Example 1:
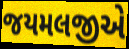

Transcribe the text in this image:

જયમલજીએ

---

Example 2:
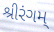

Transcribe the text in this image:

શ્રીરંગમ્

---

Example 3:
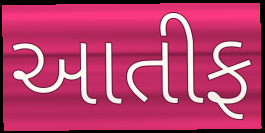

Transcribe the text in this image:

આતીફ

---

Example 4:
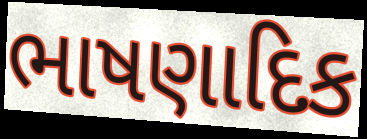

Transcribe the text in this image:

ભાષણાદિક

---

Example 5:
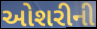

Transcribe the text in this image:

ઓશરીની